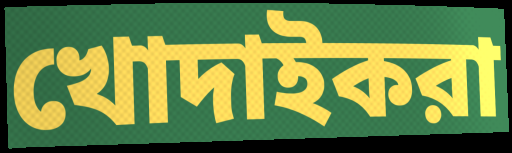
খোদাইকরা